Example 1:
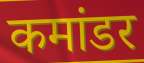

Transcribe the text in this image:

कमांडर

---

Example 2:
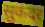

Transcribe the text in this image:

सुकंदर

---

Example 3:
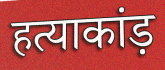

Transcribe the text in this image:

हत्याकांड़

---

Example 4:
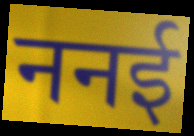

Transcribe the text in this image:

ननई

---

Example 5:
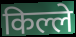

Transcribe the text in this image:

किल्ले